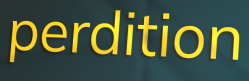
perdition